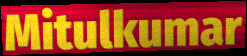
Mitulkumar